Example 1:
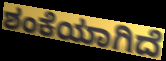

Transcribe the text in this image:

ಶಂಕೆಯಾಗಿದೆ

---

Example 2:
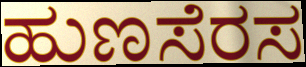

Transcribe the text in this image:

ಹುಣಸೆರಸ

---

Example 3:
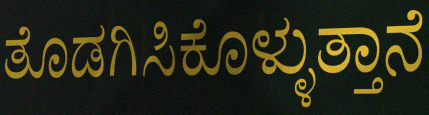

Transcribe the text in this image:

ತೊಡಗಿಸಿಕೊಳ್ಳುತ್ತಾನೆ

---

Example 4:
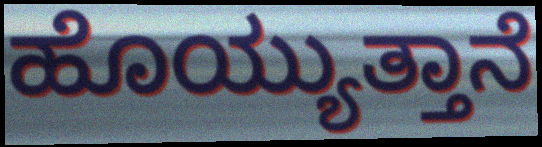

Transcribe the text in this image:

ಹೊಯ್ಯುತ್ತಾನೆ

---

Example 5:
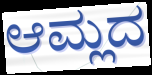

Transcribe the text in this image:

ಆಮ್ಲದ